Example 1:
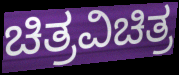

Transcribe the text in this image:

ಚಿತ್ರವಿಚಿತ್ರ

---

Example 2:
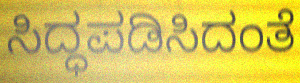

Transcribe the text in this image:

ಸಿದ್ಧಪಡಿಸಿದಂತೆ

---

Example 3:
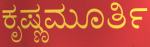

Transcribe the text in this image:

ಕೃಷ್ಣಮೂರ್ತಿ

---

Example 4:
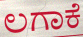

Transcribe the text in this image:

ಲಗಾಕೆ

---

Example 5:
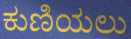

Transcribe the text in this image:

ಕುಣಿಯಲು